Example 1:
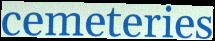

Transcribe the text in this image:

cemeteries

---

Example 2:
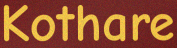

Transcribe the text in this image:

Kothare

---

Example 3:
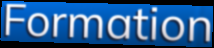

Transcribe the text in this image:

Formation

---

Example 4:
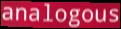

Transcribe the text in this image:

analogous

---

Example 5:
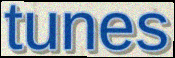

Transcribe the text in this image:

tunes